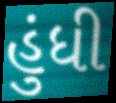
હુંધી